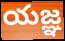
యజ్ఞ